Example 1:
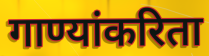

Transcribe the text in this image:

गाण्यांकरिता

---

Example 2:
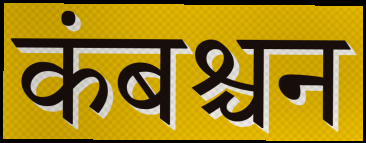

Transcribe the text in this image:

कंबश्चन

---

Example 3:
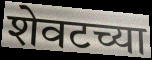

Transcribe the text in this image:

शेवटच्या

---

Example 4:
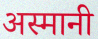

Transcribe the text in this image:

अस्मानी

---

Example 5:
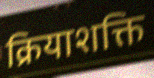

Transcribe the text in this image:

क्रियाशक्ति